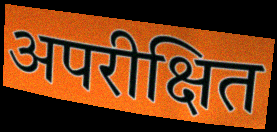
अपरीक्षित